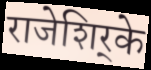
राजेशिर्के